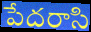
పేదరాసి